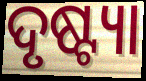
ଦୃଷ୍ଟ୍ୟା